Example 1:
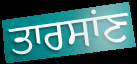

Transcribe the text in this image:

ਤਾਰਸਾਂਣ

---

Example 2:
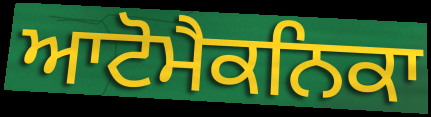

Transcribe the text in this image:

ਆਟੋਮੈਕਨਿਕਾ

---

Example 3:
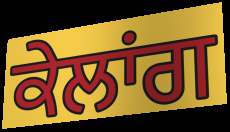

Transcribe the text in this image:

ਕੇਲਾਂਗ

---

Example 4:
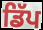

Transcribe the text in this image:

ਡਿੱਪ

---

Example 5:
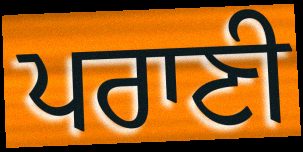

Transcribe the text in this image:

ਪਰਾਣੀ